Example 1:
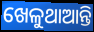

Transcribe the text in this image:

ଖେଳୁଥାଆନ୍ତି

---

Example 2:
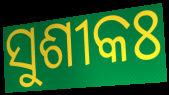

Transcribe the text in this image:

ସୁଶୀକଃ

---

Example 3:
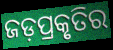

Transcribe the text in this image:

ଜଡ଼ପ୍ରକୃତିର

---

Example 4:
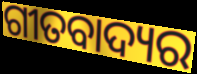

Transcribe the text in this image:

ଗୀତବାଦ୍ୟର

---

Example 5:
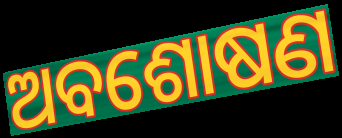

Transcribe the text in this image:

ଅବଶୋଷଣ